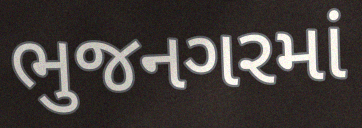
ભુજનગરમાં